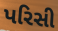
પરિસી